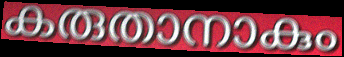
കരുതാനാകും